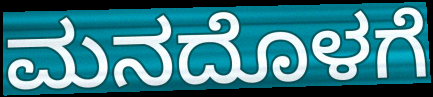
ಮನದೊಳಗೆ